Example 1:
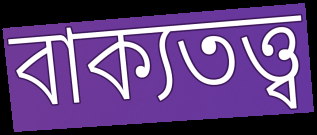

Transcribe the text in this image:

বাক্যতত্ত্ব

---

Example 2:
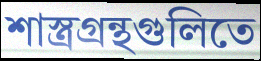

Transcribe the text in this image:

শাস্ত্রগ্রন্থগুলিতে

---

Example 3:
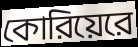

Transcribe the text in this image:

কোরিয়েরে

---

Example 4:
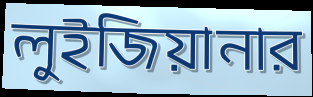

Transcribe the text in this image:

লুইজিয়ানার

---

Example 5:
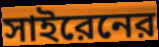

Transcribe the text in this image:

সাইরেনের